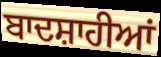
ਬਾਦਸ਼ਾਹੀਆਂ